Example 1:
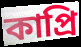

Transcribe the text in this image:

কাপ্রি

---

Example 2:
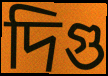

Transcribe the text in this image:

দিগু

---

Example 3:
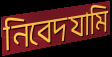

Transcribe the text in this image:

নিবেদযামি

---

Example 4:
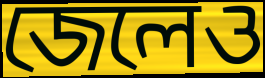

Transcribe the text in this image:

জেলেও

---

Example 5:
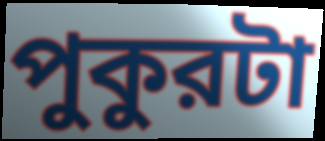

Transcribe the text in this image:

পুকুরটা